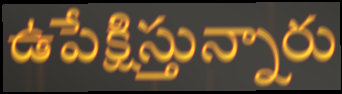
ఉపేక్షిస్తున్నారు